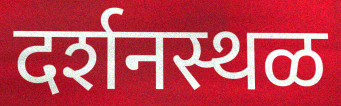
दर्शनस्थळ